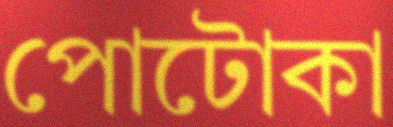
পোটোকা